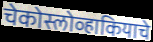
चेकोस्लोव्हाकियाचे